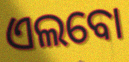
ଏଲବୋ